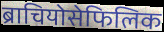
ब्राचियोसेफिलिक